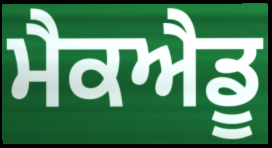
ਮੈਕਐਡੂ